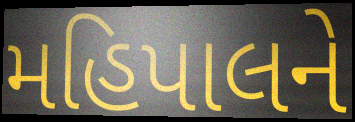
મહિપાલને